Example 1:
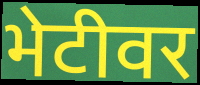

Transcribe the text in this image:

भेटीवर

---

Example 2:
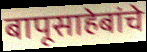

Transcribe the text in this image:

बापूसाहेबांचे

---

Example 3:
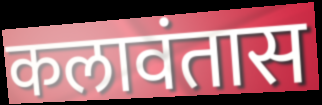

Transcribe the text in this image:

कलावंतास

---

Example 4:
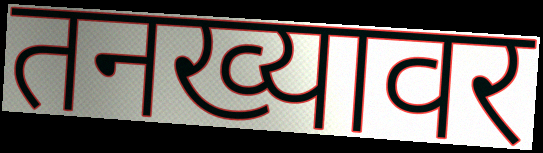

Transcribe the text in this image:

तनख्यावर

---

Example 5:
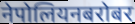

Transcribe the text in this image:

नेपोलियनबरोबर